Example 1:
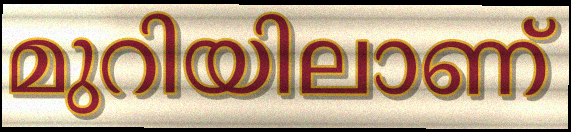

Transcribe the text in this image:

മുറിയിലാണ്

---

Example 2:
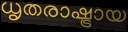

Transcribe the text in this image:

ധൃതരാഷ്ട്രായ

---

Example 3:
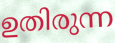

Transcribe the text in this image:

ഉതിരുന്ന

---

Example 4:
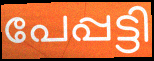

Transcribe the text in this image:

പേപ്പട്ടി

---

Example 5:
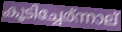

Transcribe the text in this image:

കൂടിച്ചേര്ന്നാല്